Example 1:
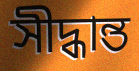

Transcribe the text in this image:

সীদ্ধান্ত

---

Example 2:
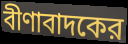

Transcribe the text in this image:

বীণাবাদকের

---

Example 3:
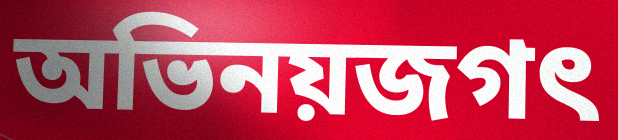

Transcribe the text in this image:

অভিনয়জগৎ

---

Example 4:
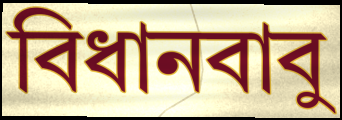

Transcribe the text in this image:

বিধানবাবু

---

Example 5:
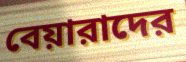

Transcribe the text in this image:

বেয়ারাদের